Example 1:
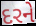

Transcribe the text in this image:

દરને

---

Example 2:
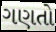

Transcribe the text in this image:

ગણતો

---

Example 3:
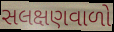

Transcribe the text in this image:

સલક્ષણવાળો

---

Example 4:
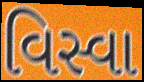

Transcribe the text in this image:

વિસ્વા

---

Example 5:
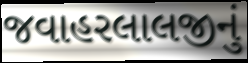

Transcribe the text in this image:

જવાહરલાલજીનું